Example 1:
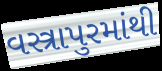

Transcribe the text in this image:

વસ્ત્રાપુરમાંથી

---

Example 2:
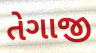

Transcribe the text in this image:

તેગાજી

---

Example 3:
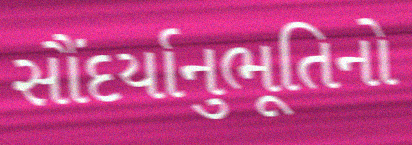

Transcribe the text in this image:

સૌંદર્યાનુભૂતિનો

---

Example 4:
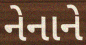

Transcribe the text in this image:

નેનાને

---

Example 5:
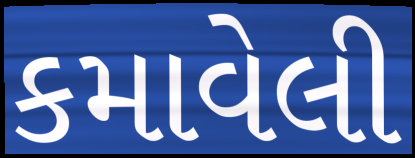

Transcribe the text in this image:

કમાવેલી